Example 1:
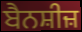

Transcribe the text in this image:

ਬੈਨਸ਼ੀਜ਼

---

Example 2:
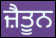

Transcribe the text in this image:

ਜ਼ੈਤੂਨ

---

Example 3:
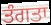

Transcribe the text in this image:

ਤੰਗਤਾ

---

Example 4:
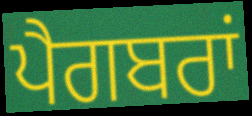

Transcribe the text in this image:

ਪੈਗਬਰਾਂ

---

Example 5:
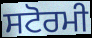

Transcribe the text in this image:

ਸਟੋਰਮੀ